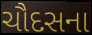
ચૌદસના